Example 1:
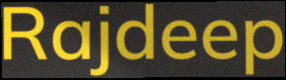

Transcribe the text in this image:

Rajdeep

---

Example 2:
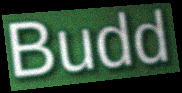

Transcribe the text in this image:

Budd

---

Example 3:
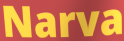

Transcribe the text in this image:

Narva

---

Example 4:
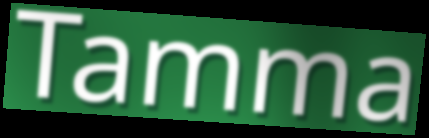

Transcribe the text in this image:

Tamma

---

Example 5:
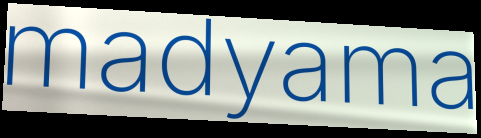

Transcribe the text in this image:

madyama